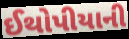
ઈથોપીયાની